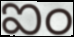
ఐం